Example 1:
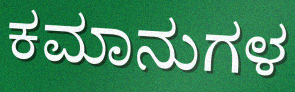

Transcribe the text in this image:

ಕಮಾನುಗಳ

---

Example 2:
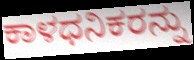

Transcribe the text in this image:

ಕಾಳಧನಿಕರನ್ನು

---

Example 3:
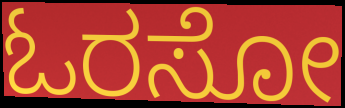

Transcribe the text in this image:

ಓರಸೋ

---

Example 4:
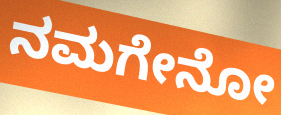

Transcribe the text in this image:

ನಮಗೇನೋ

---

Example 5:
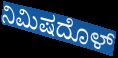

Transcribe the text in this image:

ನಿಮಿಷದೊಳ್